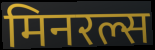
मिनरल्स